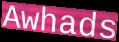
Awhads